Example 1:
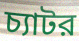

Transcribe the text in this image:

চ্যাটর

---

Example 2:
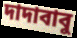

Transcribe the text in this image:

দাদাবাবু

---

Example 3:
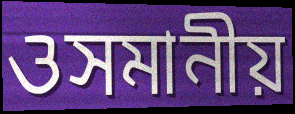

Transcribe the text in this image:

ওসমানীয়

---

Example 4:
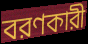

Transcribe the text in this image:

বরণকারী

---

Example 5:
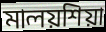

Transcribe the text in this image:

মালয়শিয়া